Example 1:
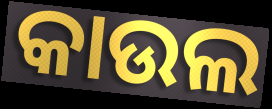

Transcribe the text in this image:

କାଉଲ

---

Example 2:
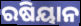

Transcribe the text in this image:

ରଷିୟାନ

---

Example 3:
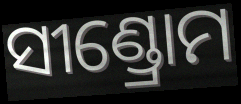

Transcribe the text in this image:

ସୀଣ୍ଡ୍ରୋମ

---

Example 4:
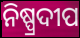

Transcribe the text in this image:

ନିଷ୍ପ୍ରଦୀପ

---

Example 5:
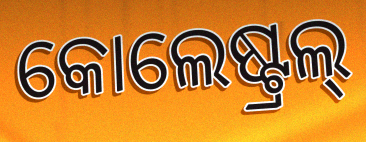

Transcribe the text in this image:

କୋଲେଷ୍ଟ୍ରଲ୍